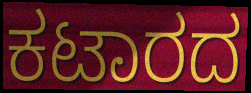
ಕಟಾರದ